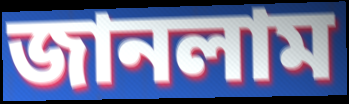
জানলাম